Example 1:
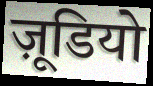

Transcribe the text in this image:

ज़ूडियो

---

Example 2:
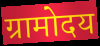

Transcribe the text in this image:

ग्रामोदय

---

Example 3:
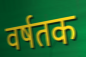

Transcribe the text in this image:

वर्षतक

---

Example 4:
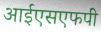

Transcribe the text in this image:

आईएसएफपी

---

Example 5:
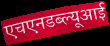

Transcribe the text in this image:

एचएनडब्ल्यूआई